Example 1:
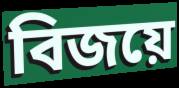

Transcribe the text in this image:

বিজয়ে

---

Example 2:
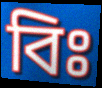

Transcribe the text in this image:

বিঃ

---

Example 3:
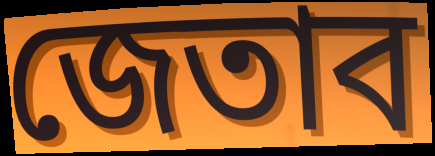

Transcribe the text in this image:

জেতাব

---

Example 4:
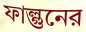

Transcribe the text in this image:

ফাল্গুনের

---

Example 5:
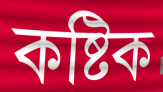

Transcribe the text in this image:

কষ্টিক